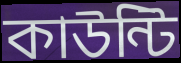
কাউন্টি